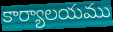
కార్యాలయము